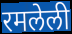
रमलेली